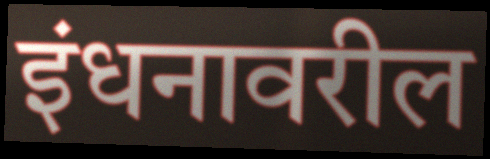
इंधनावरील